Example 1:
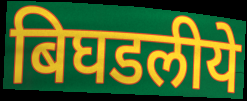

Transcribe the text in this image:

बिघडलीये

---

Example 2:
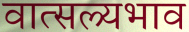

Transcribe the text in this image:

वात्सल्यभाव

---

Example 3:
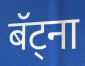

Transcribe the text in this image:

बॅट्ना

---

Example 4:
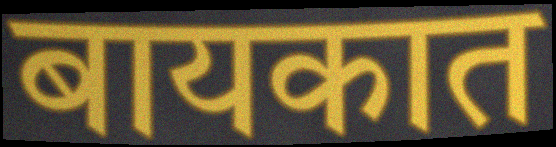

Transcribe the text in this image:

बायकात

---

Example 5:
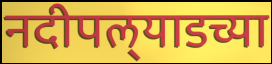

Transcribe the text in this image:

नदीपल्याडच्या